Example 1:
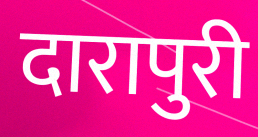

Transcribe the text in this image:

दारापुरी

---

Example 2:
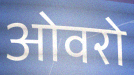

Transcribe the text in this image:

ओवरो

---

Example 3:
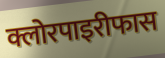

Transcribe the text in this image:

क्लोरपाइरीफास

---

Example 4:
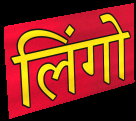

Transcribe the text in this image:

लिंगो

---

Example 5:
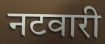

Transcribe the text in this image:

नटवारी